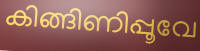
കിങ്ങിണിപ്പൂവേ